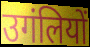
उगंलियों